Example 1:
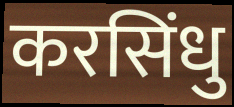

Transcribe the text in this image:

करसिंधु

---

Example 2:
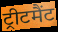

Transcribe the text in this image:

ट्रीटमैंट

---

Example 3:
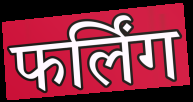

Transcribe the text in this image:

फर्लिंग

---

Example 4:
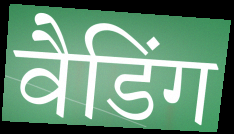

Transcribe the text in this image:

वैडिंग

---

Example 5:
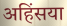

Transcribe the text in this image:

अहिंसया